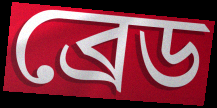
ব্ৰেড